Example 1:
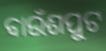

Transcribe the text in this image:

ବାଉଁଶପୁଟ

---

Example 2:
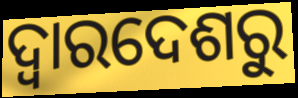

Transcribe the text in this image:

ଦ୍ଵାରଦେଶରୁ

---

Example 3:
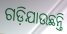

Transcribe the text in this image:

ଗଡ଼ିଯାଉଛନ୍ତି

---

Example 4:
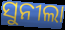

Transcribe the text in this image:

ସୁନୀଲା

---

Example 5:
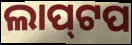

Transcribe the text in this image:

ଲାପ୍‌ଟପ